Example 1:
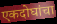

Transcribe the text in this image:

एकदोघांचा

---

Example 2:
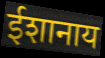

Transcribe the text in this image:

ईशानाय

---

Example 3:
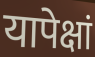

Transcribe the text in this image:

यापेक्षां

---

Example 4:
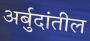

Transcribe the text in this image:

अर्बुदांतील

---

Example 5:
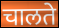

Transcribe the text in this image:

चालते